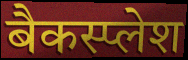
बैकस्प्लेश